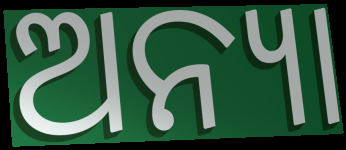
ଅନ୍ୟା